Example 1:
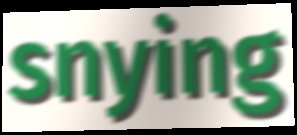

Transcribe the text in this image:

snying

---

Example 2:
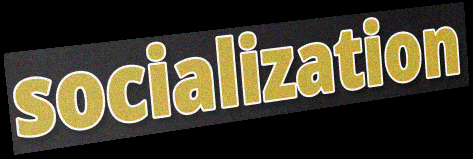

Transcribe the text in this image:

socialization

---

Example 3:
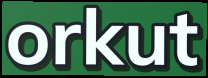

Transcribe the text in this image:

orkut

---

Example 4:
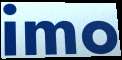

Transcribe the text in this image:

imo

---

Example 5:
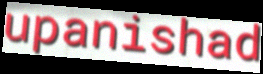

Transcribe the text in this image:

upanishad